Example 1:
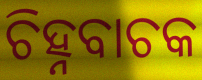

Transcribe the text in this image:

ଚିହ୍ନବାଚକ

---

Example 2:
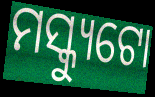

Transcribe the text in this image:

ମସ୍କ୍ୟୁଟୋ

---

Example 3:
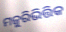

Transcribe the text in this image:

ମଜୁରିଭିତ୍ତିକ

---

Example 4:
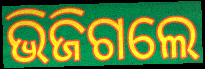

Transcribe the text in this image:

ଭିଜିଗଲେ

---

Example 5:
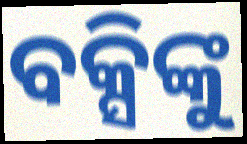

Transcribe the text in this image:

ବକ୍ସିଙ୍କୁ